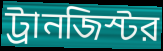
ট্রানজিস্টর